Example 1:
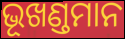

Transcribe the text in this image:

ଭୂଖଣ୍ଡମାନ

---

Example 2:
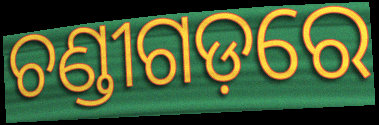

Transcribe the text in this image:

ଚଣ୍ଡୀଗଡ଼ରେ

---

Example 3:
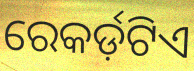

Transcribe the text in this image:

ରେକର୍ଡ଼ଟିଏ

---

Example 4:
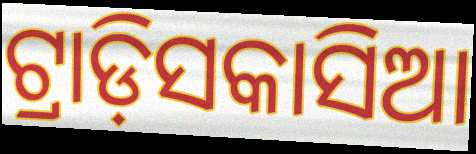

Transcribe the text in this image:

ଟ୍ରାଡ଼ିସକାସିଆ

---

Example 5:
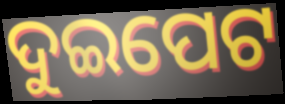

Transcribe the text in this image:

ଦୁଇପେଟ